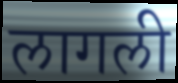
लागली